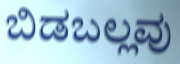
ಬಿಡಬಲ್ಲವು